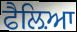
ਫੈਲ਼ਿਆ